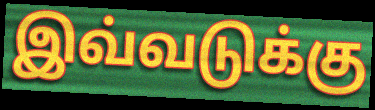
இவ்வடுக்கு